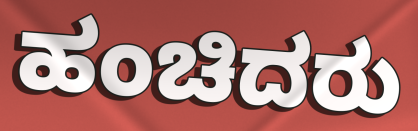
ಹಂಚಿದರು